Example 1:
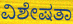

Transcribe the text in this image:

ವಿಶೇಷತಾ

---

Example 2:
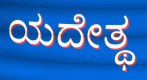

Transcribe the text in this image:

ಯದೇತ್ಥ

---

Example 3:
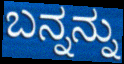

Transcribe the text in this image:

ಬನ್ನನ್ನು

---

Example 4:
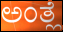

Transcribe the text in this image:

ಅಂತ್ಲೆ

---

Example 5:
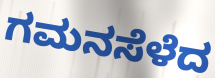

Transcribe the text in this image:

ಗಮನಸೆಳೆದ